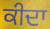
ਕੀਦਾ